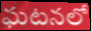
ఘటనలో